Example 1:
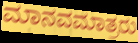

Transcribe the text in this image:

ಮಾನವಮಾತ್ರರು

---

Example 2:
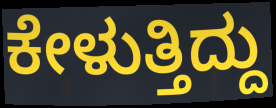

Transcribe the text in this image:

ಕೇಳುತ್ತಿದ್ದು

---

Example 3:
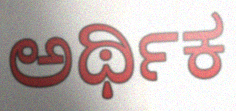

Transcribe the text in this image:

ಅರ್ಥಿಕ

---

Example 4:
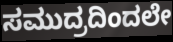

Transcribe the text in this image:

ಸಮುದ್ರದಿಂದಲೇ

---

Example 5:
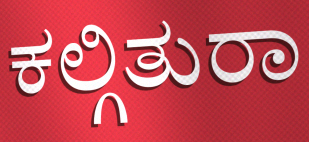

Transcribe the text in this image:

ಕಲ್ಗಿತುರಾ